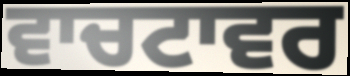
ਵਾਚਟਾਵਰ